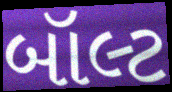
બૉલ્ટ